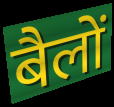
बैलों